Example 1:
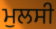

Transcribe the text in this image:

ਮੁਲਸੀ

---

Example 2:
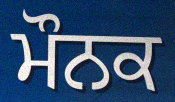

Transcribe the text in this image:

ਮੌਨਕ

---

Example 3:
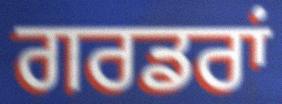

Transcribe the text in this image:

ਗਰਡਰਾਂ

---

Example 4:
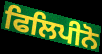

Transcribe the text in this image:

ਫਿਲਿਪੀਨੋ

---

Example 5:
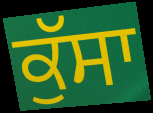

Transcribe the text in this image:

ਕੁੱਸਾ